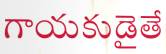
గాయకుడైతే